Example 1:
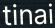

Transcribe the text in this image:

tinai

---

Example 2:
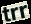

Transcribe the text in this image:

trr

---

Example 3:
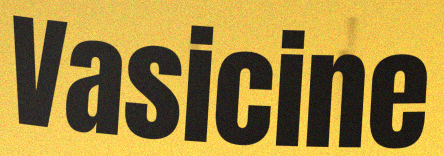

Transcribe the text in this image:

Vasicine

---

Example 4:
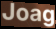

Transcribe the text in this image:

Joag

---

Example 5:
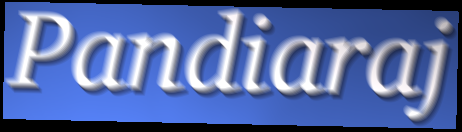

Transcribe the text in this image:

Pandiaraj